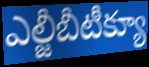
ఎల్జీబీటీక్యూ